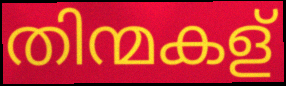
തിന്മകള്